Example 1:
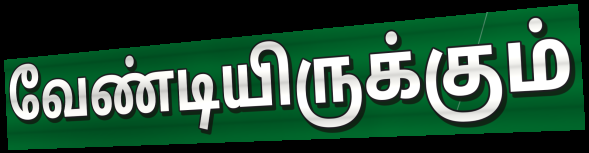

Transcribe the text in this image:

வேண்டியிருக்கும்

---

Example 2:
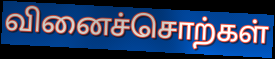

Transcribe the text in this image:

வினைச்சொற்கள்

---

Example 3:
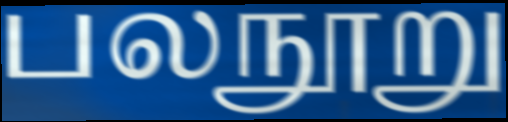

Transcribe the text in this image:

பலநூறு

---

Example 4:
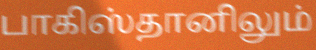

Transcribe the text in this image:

பாகிஸ்தானிலும்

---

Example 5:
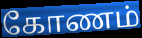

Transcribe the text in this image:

கோணம்